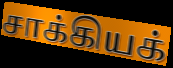
சாக்கியக்